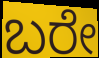
ಬರೇ